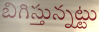
బిగిస్తున్నట్టు